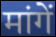
मांगें